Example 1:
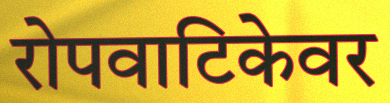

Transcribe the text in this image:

रोपवाटिकेवर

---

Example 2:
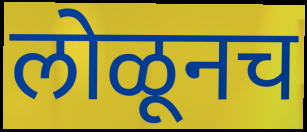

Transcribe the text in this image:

लोळूनच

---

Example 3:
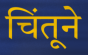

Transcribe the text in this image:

चिंतूने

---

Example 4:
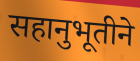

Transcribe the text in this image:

सहानुभूतीने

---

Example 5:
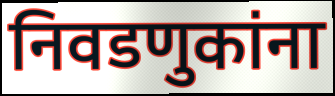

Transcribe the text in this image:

निवडणुकांना